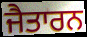
ਜੈਤਾਰਨ